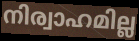
നിര്വാഹമില്ല